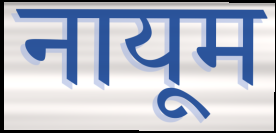
नायूम